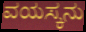
ವಯಸ್ಕನು